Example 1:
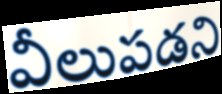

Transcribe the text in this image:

వీలుపడని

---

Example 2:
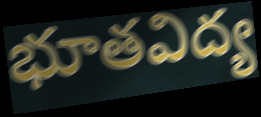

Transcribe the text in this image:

భూతవిద్య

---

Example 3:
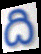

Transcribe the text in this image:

ది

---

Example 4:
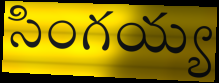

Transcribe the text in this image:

సింగయ్య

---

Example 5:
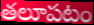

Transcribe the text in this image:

తలూపటం